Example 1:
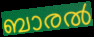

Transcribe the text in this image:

ബാരൽ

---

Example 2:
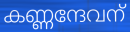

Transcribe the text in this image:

കണ്ണന്ദേവന്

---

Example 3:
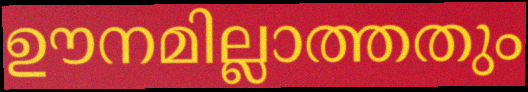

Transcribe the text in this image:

ഊനമില്ലാത്തതും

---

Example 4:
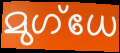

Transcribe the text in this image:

മുഗ്ധേ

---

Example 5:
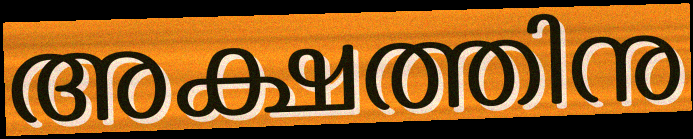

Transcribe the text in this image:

അക്ഷത്തിനു